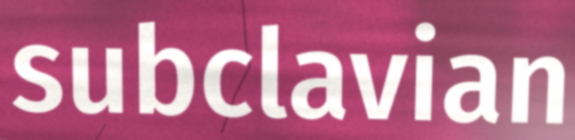
subclavian